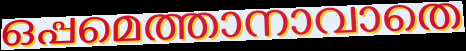
ഒപ്പമെത്താനാവാതെ